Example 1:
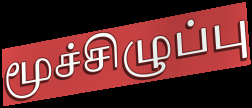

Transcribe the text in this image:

மூச்சிழுப்பு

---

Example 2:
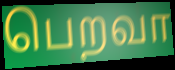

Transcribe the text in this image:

பெறவா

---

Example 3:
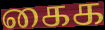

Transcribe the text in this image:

கைக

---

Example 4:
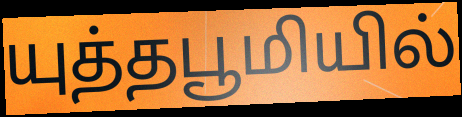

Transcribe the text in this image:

யுத்தபூமியில்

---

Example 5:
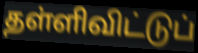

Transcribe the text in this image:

தள்ளிவிட்டுப்